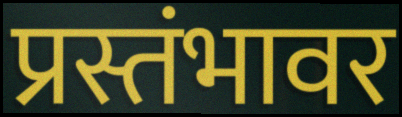
प्रस्तंभावर